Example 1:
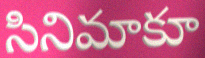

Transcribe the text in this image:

సినిమాకూ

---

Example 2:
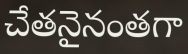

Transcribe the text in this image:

చేతనైనంతగా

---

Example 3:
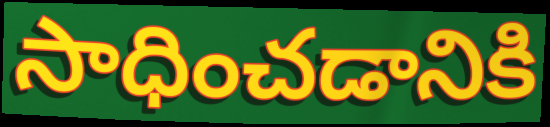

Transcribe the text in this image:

సాధించడానికి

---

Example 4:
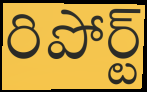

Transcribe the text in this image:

రిపోర్ట్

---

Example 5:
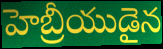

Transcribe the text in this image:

హెబ్రీయుడైన